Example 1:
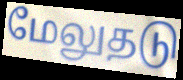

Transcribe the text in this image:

மேலுதடு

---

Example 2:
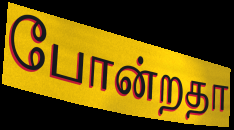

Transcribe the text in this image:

போன்றதா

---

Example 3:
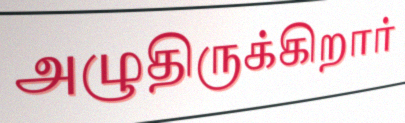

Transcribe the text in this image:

அழுதிருக்கிறார்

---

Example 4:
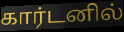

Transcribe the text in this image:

கார்டனில்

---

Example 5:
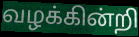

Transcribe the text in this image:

வழக்கின்றி